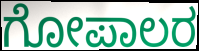
ಗೋಪಾಲರ